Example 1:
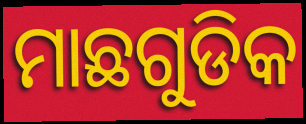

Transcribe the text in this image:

ମାଛଗୁଡିକ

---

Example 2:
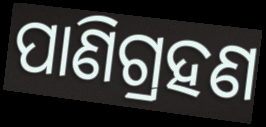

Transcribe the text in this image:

ପାଣିଗ୍ରହଣ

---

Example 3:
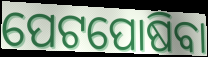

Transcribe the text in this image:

ପେଟପୋଷିବା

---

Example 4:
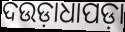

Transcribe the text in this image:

ଦଉଡ଼ାଧାପଡ଼ା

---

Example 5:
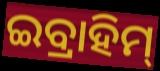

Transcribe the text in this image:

ଇବ୍ରାହିମ୍